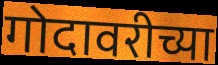
गोदावरीच्या